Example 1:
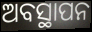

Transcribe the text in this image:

ଅବସ୍ଥାପନ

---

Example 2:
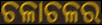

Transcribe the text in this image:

ଚଳାଚଳର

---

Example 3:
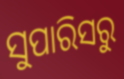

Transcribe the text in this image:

ସୁପାରିସରୁ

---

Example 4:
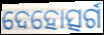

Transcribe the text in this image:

ଦେହୋତ୍ସର୍ଗ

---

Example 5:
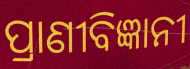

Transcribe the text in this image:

ପ୍ରାଣୀବିଜ୍ଞାନୀ